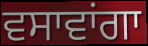
ਵਸਾਵਾਂਗਾ